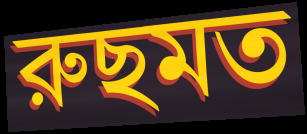
রুছমত